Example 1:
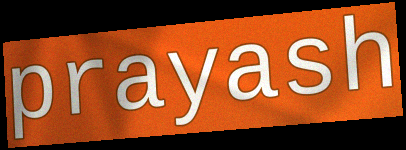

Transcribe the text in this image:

prayash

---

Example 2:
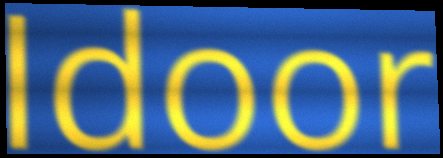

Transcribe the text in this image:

Idoor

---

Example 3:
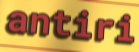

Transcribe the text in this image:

antiri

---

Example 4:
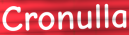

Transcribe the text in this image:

Cronulla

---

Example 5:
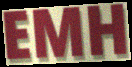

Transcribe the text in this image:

EMH